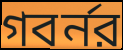
গবর্নর